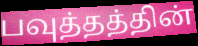
பவுத்தத்தின்